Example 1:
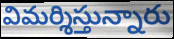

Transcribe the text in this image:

విమర్శిస్తున్నారు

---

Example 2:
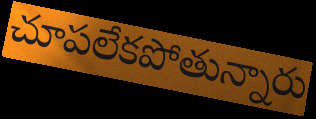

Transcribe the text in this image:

చూపలేకపోతున్నారు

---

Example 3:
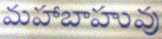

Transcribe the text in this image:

మహాబాహువు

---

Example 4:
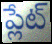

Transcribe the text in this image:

ప్లేట్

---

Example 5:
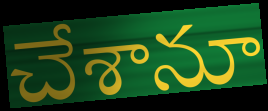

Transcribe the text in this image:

చేశానూ